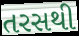
તરસથી